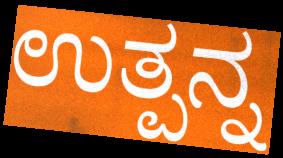
ಉತ್ಪನ್ನ